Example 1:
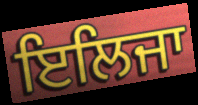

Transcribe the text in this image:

ਇਲਿਜਾ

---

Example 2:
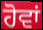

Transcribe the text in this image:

ਹੋਵਾਂ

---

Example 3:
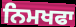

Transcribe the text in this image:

ਨਿਮਖਫਾ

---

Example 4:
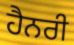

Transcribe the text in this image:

ਹੈਨਰੀ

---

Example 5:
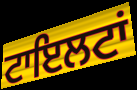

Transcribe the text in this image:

ਟਾਇਲਟਾਂ